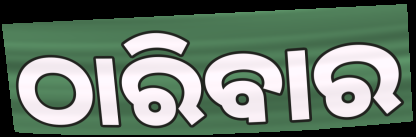
ଠାରିବାର